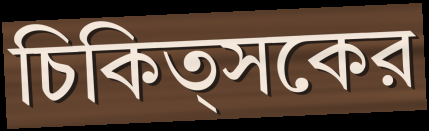
চিকিত্সকের